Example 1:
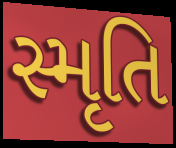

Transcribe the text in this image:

સ્મૃતિ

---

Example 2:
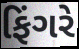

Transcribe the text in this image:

ફિંગરે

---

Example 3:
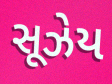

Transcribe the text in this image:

સૂઝેય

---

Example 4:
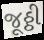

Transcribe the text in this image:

જૂઠ્ઠી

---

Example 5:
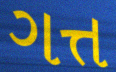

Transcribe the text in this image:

ગત્ત